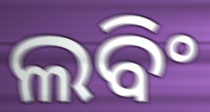
ଲବିଂ